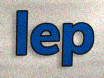
lep